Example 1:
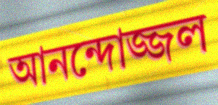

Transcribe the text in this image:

আনন্দোজ্জল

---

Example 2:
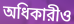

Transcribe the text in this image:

অধিকারীও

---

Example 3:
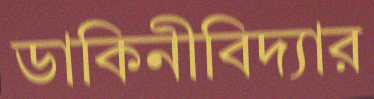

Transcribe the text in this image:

ডাকিনীবিদ্যার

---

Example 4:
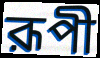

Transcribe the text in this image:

রূপী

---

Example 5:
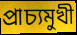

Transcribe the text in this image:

প্রাচ্যমুখী